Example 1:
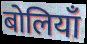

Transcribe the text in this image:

बोलियाँ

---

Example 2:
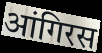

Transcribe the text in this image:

आंगिरस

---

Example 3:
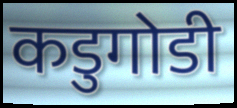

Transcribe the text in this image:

कडुगोडी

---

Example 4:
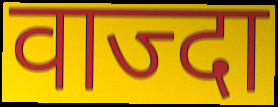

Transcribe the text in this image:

वाज्दा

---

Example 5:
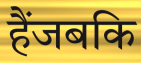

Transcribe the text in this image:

हैंजबकि